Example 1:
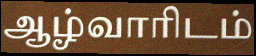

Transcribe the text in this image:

ஆழ்வாரிடம்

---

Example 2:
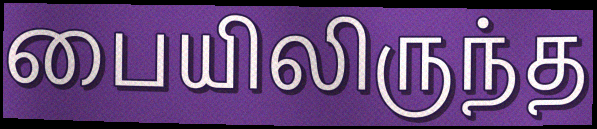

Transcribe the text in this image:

பையிலிருந்த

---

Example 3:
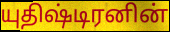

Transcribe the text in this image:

யுதிஷ்டிரனின்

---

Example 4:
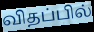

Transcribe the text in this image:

விதப்பில்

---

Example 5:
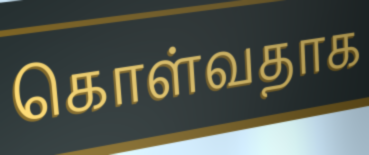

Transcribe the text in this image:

கொள்வதாக